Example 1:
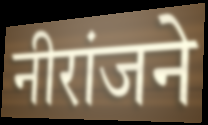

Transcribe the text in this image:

नीरांजने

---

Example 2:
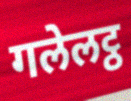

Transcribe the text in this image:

गलेलट्ठ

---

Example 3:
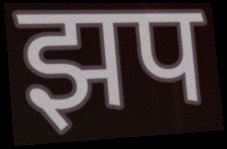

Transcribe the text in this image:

झप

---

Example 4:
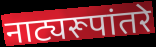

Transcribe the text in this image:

नाट्यरूपांतरे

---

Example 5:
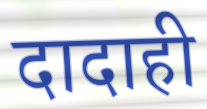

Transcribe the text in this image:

दादाही